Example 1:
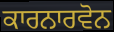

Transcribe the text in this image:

ਕਾਰਨਾਰਵੋਨ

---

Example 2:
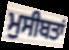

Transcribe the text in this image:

ਮੁਸੀਬਤਾਂ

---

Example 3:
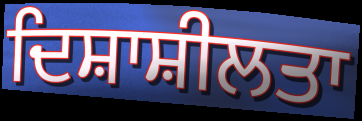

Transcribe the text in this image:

ਦਿਸ਼ਾਸ਼ੀਲਤਾ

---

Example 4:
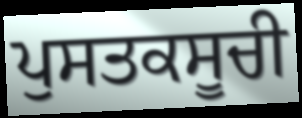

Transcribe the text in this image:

ਪੁਸਤਕਸੂਚੀ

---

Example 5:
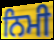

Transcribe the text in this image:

ਨਿਮੀ